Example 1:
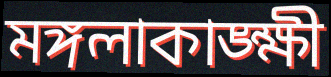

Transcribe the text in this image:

মঙ্গলাকাঙ্ক্ষী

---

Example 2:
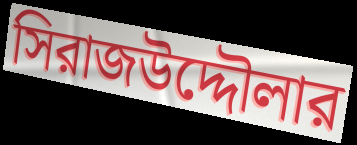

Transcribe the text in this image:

সিরাজউদ্দৌলার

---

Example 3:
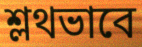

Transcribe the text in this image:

শ্লথভাবে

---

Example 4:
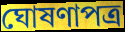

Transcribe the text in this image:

ঘোষণাপত্র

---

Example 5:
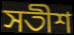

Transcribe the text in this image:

সতীশ